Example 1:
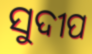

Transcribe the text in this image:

ସୁଦୀପ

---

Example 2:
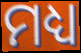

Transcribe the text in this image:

ମଧ୍ୟ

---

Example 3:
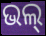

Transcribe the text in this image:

ଭଲ୍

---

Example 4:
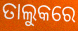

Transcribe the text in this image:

ତାଲୁକରେ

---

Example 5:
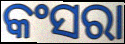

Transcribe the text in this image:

କଂସରା